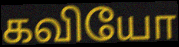
கவியோ